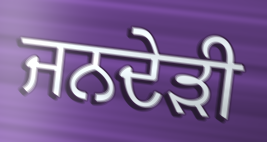
ਜਨਦੇੜੀ